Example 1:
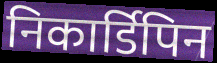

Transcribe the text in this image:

निकार्डिपिन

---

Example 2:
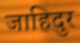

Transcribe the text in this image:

जाहिदुर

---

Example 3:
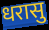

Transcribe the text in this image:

धरासु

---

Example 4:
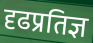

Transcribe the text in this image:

दृढप्रतिज्ञ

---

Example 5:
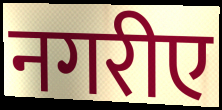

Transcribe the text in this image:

नगरीए